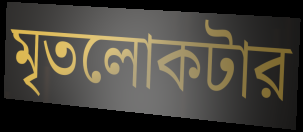
মৃতলোকটার